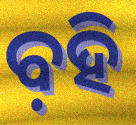
ବ଼ହି